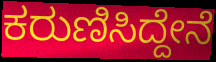
ಕರುಣಿಸಿದ್ದೇನೆ